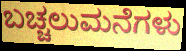
ಬಚ್ಚಲುಮನೆಗಳು